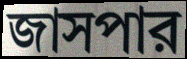
জাসপার